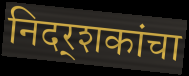
निदर्शकांचा